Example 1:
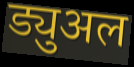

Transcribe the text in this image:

ड्युअल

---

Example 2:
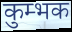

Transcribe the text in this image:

कुम्भक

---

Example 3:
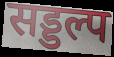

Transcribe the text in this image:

सड्डल्प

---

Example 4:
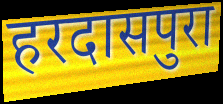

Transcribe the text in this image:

हरदासपुरा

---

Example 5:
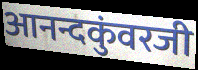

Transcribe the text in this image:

आनन्दकुंवरजी